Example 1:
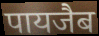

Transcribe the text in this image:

पायजैब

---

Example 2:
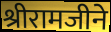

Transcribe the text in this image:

श्रीरामजीने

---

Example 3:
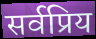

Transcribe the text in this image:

सर्वप्रिय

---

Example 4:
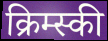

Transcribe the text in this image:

क्रिम्स्की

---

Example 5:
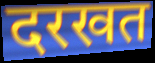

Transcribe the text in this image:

दरखत